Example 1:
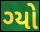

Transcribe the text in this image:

ગ્યો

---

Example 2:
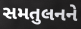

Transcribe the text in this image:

સમતુલનને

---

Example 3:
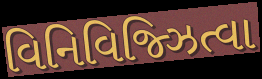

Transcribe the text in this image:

વિનિવિજ્ઝિત્વા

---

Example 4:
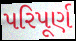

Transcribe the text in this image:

પરિપૂર્ણ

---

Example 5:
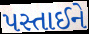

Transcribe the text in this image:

પસ્તાઈને